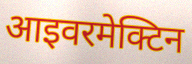
आइवरमेक्टिन